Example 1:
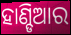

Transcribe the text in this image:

ହାଣ୍ଡିଆର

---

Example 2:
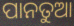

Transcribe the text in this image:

ପାନତୁଆ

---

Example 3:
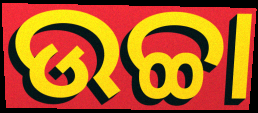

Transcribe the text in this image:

ଉଚ୍ଚା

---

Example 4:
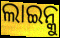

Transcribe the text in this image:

ଲାଇନ୍କୁ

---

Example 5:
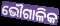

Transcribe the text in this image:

ଭୌଗାଳିକ